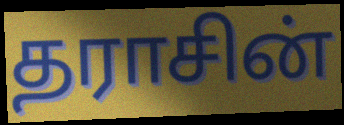
தராசின்